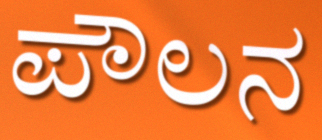
ಪೌಲನ